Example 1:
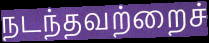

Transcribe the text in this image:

நடந்தவற்றைச்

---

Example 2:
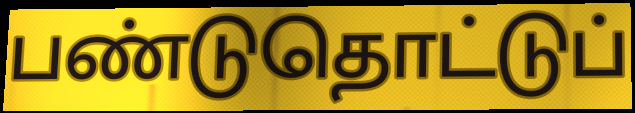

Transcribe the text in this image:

பண்டுதொட்டுப்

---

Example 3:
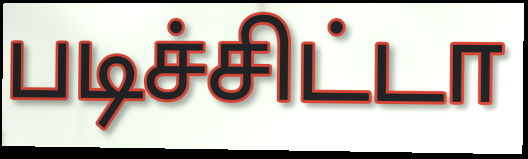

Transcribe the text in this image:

படிச்சிட்டா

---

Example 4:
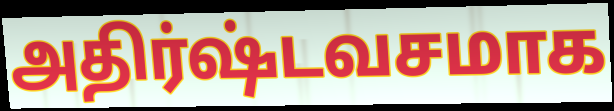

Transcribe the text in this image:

அதிர்ஷ்டவசமாக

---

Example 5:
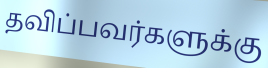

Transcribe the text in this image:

தவிப்பவர்களுக்கு